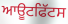
ਆਊਟਫਿੱਟਸ